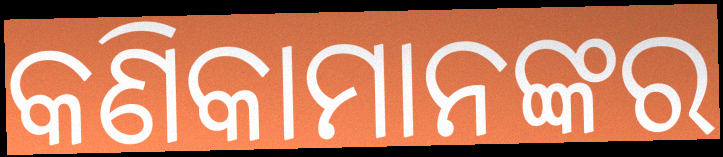
କଣିକାମାନଙ୍କର